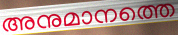
അനുമാനത്തെ